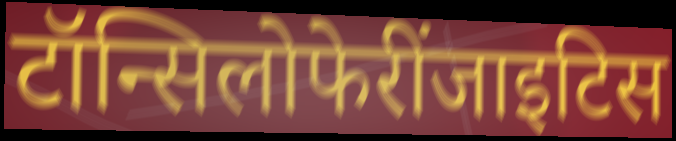
टॉन्सिलोफेरींजाइटिस